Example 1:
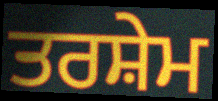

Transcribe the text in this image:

ਤਰਸ਼ੇਮ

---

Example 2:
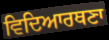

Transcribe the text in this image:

ਵਿਦਿਆਰਥਣਾ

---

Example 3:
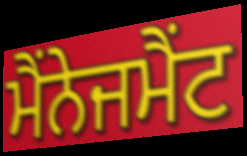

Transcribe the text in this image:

ਮੈਂਨੇਜਮੈਂਟ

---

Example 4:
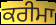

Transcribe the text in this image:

ਕਰੀਮਾ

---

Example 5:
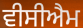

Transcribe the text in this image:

ਵੀਸੀਐਮ